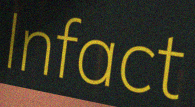
Infact